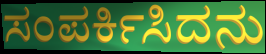
ಸಂಪರ್ಕಿಸಿದನು